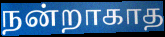
நன்றாகாத